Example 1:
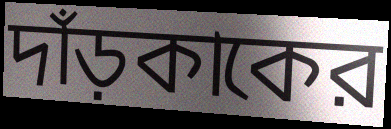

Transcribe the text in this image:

দাঁড়কাকের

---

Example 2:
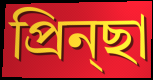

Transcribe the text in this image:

প্রিন্ছা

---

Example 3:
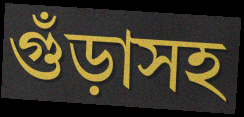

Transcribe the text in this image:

গুঁড়াসহ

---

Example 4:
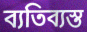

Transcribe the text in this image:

ব্যতিব্যস্ত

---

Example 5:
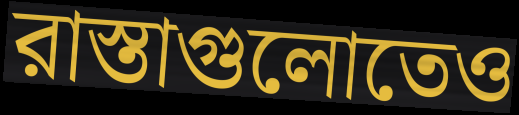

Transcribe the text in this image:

রাস্তাগুলোতেও